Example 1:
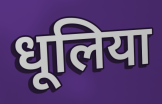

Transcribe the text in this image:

धूलिया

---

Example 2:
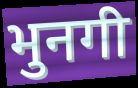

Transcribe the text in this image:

भुनगी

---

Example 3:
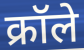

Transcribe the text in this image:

क्रॉले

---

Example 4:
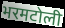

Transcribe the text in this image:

भरमटोली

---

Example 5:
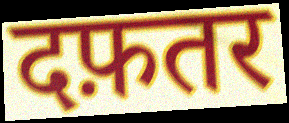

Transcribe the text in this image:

दफ़तर